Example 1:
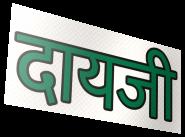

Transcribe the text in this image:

दायजी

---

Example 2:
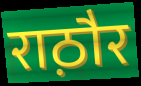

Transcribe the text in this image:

राठ़ौर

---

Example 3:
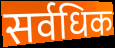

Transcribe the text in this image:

सर्वधिक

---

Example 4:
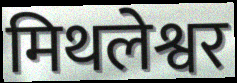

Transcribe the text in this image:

मिथलेश्वर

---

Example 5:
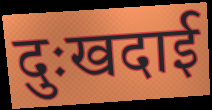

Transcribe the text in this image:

दुःखदाई